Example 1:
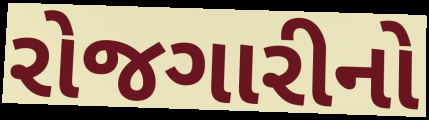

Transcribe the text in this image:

રોજગારીનો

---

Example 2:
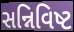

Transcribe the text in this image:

સન્નિવિષ્ટ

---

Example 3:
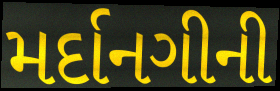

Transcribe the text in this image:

મર્દાનગીની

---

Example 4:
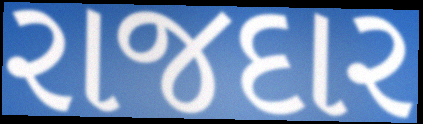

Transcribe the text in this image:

રાજદાર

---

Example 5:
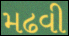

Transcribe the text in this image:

મઢવી